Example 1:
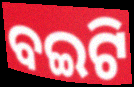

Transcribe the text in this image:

ବଇଟି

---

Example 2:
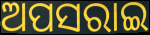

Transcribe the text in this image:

ଅପସରାଇ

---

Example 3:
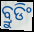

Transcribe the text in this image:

ବ୍ରୁଡିଂ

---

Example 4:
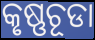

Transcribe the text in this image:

କୃଷ୍ଣଚୂଡା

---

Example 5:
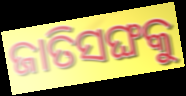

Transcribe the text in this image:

ଜାତିସଙ୍ଘକୁ